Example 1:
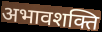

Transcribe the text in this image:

अभावशक्ति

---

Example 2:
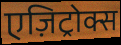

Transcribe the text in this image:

एज़िट्रोक्स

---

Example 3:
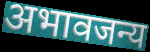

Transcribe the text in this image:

अभावजन्य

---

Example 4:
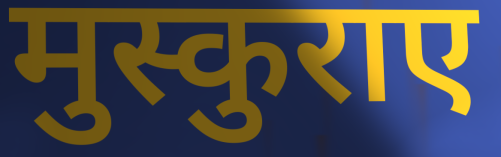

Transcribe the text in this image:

मुस्कुराए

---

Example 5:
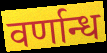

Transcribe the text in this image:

वर्णान्ध